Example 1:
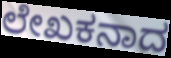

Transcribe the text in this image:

ಲೇಖಕನಾದ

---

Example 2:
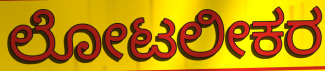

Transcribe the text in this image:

ಲೋಟಲೀಕರ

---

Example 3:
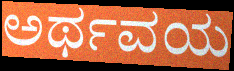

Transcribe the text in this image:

ಅರ್ಥವಯ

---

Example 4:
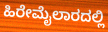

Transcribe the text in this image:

ಹಿರೇಮೈಲಾರದಲ್ಲಿ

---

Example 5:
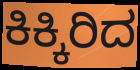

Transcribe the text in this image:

ಕಿಕ್ಕಿರಿದ